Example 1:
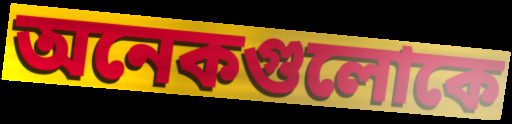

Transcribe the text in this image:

অনেকগুলোকে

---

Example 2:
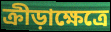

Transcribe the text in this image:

ক্রীড়াক্ষেত্রে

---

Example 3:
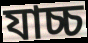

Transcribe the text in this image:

যাচ্চ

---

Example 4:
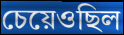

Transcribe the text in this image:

চেয়েওছিল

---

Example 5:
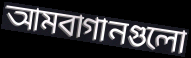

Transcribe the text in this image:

আমবাগানগুলো